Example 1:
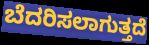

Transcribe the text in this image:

ಬೆದರಿಸಲಾಗುತ್ತದೆ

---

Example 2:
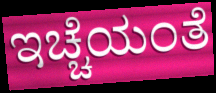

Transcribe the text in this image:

ಇಚ್ಚೆಯಂತೆ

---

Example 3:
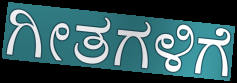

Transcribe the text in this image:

ಗೀತಗಳಿಗೆ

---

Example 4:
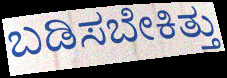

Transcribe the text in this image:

ಬಡಿಸಬೇಕಿತ್ತು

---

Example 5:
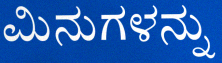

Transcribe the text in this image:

ಮಿನುಗಳನ್ನು